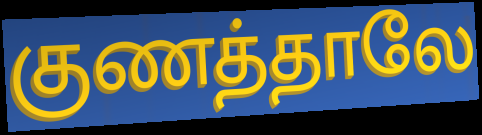
குணத்தாலே